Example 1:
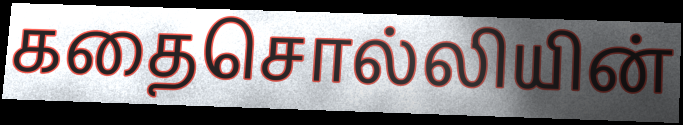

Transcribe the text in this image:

கதைசொல்லியின்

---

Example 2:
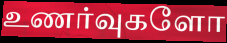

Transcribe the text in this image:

உணர்வுகளோ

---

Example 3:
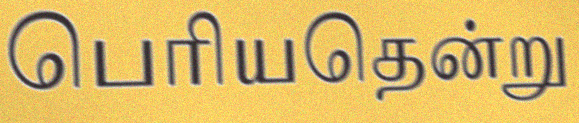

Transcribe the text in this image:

பெரியதென்று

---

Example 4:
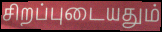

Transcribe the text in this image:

சிறப்புடையதும்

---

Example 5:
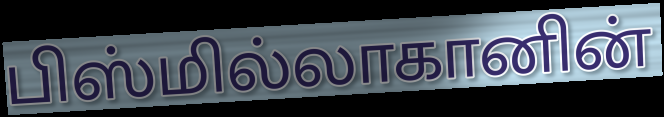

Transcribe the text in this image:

பிஸ்மில்லாகானின்